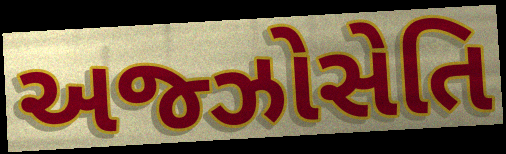
અજ્ઝોસેતિ